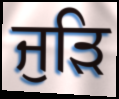
ਜੁੜਿ